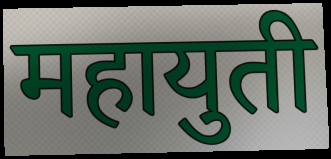
महायुती